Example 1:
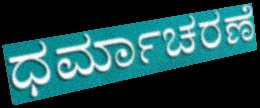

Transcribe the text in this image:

ಧರ್ಮಾಚರಣೆ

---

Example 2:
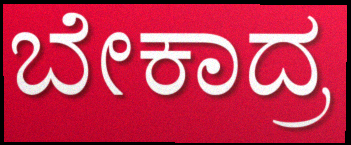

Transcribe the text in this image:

ಬೇಕಾದ್ರ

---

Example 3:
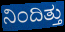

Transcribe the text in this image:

ನಿಂದಿತ್ತು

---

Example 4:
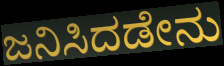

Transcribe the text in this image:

ಜನಿಸಿದಡೇನು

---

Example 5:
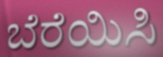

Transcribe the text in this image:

ಬೆರೆಯಿಸಿ